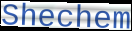
Shechem